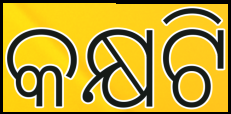
କକ୍ଷଟି